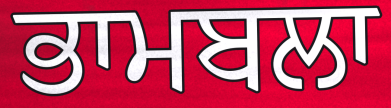
ਭਾਮਬਲਾ